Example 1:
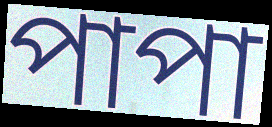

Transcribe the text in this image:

পাপা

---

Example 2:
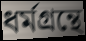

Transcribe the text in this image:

ধর্মগ্রন্থে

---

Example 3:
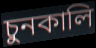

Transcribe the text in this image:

চুনকালি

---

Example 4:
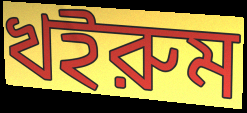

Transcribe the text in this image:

খইরুম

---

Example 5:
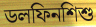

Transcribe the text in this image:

ডলফিনশিশু